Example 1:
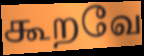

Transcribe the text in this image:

கூறவே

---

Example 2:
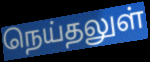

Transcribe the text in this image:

நெய்தலுள்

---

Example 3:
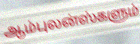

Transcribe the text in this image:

ஆம்புலன்ஸ்களும்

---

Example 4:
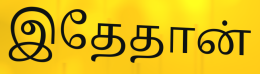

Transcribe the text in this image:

இதேதான்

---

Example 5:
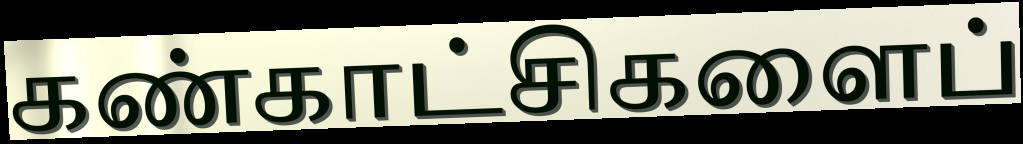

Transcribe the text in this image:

கண்காட்சிகளைப்